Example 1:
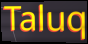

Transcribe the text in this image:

Taluq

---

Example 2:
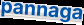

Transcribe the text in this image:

pannaga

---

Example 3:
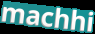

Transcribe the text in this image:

machhi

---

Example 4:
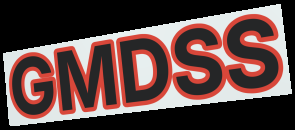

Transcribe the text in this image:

GMDSS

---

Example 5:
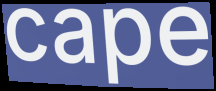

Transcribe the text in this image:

cape